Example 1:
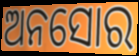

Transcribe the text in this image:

ଅନସୋର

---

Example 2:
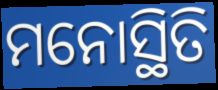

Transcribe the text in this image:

ମନୋସ୍ଥିତି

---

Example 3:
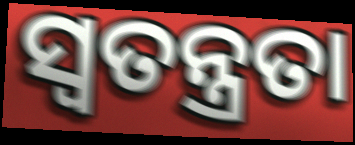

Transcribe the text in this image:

ସ୍ବତନ୍ତ୍ରତା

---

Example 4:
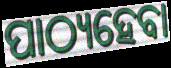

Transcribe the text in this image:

ପାଠ୍ୟହେବା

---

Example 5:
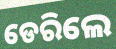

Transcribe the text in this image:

ଡେରିଲେ